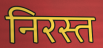
निरस्त